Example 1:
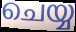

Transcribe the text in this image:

ചെയ്യ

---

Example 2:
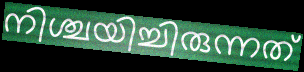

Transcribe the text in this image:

നിശ്ചയിച്ചിരുന്നത്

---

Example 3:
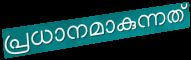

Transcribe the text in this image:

പ്രധാനമാകുന്നത്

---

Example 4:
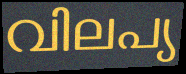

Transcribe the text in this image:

വിലപ്യ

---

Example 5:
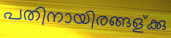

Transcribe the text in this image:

പതിനായിരങ്ങള്ക്കു